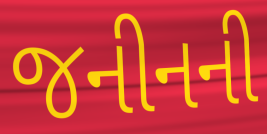
જનીનની